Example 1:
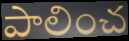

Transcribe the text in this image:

పాలించ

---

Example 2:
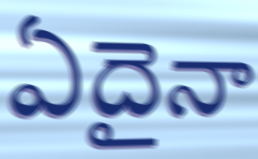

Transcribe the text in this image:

ఏదైనా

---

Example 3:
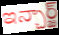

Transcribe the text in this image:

ఇన్చార్జ్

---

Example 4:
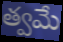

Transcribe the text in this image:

త్వమే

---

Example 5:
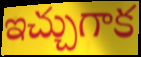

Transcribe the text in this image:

ఇచ్చుగాక